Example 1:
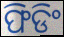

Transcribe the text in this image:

ଫିଡିଂ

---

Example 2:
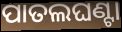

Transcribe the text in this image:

ପାତଲଘଣ୍ଟା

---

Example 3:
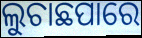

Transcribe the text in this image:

ଲୁଚାଛପାରେ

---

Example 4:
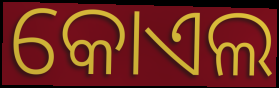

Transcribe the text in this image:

କୋଏଲ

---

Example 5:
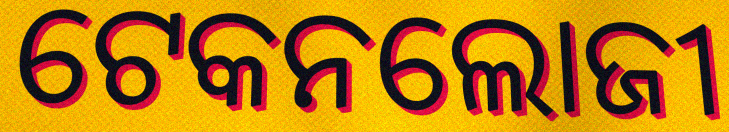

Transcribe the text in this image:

ଟେକନଲୋଜୀ